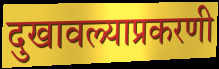
दुखावल्याप्रकरणी